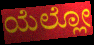
ಯೆಲ್ಲೋ